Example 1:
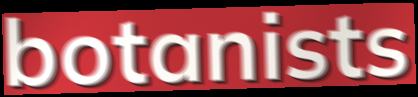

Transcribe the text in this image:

botanists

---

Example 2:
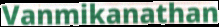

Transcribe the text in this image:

Vanmikanathan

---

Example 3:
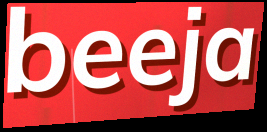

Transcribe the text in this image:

beeja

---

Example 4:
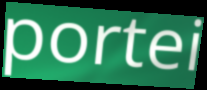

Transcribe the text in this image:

portei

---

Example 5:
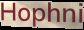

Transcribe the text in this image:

Hophni